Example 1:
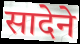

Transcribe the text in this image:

सादेने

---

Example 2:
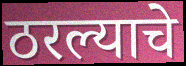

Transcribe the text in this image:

ठरल्याचे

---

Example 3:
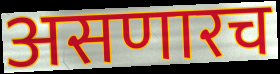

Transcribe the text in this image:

असणारच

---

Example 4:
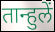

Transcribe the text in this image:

तान्हुलें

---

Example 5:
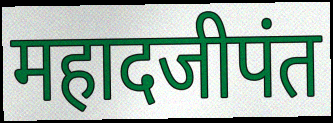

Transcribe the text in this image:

महादजीपंत